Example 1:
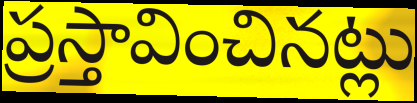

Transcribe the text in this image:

ప్రస్తావించినట్లు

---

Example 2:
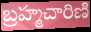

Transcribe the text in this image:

బ్రహ్మచారిణి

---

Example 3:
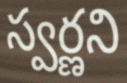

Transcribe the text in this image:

స్వర్ణని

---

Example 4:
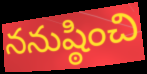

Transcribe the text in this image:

ననుష్ఠించి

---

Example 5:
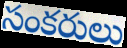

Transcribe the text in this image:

సంకరులు